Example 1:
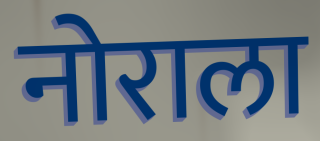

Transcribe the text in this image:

नोराला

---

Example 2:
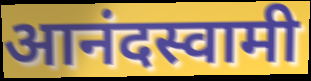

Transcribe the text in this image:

आनंदस्वामी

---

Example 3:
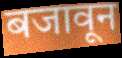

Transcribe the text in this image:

बजावून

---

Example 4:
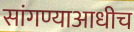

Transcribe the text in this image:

सांगण्याआधीच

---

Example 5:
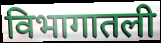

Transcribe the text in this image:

विभागातली